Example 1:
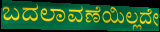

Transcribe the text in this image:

ಬದಲಾವಣೆಯಿಲ್ಲದೇ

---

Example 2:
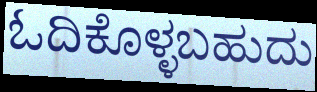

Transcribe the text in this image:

ಓದಿಕೊಳ್ಳಬಹುದು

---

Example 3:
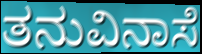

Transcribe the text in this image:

ತನುವಿನಾಸೆ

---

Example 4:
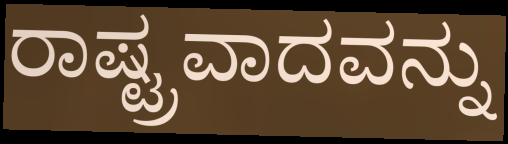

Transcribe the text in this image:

ರಾಷ್ಟ್ರವಾದವನ್ನು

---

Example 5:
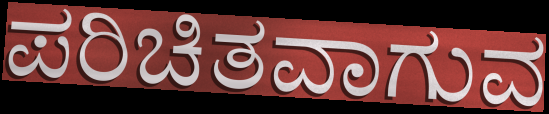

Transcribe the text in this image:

ಪರಿಚಿತವಾಗುವ